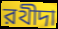
রথীদা